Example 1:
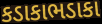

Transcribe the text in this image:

કડાકાભડાકા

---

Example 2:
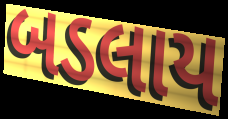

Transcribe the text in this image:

બડલાય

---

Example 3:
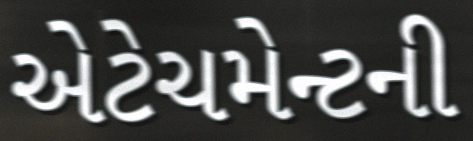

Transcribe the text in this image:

એટેચમેન્ટની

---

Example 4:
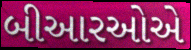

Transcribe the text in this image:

બીઆરઓએ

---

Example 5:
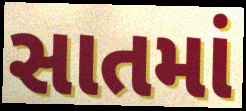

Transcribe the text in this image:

સાતમાં